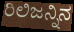
ರಿಲಿಜನ್ನಿನ